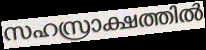
സഹസ്രാക്ഷത്തിൽ